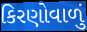
કિરણોવાળું